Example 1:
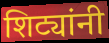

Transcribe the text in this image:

शिट्यांनी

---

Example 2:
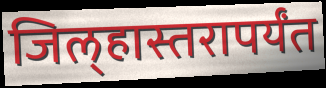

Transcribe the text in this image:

जिल्हास्तरापर्यंत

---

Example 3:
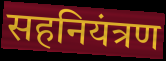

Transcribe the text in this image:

सहनियंत्रण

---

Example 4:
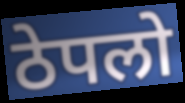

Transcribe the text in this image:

ठेपलो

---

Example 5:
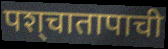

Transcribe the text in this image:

पश्चातापाची